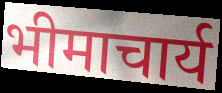
भीमाचार्य